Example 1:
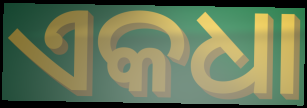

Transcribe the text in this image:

ଏକଧା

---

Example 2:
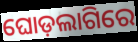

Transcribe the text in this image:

ଘୋଡ଼ଲାଗିରେ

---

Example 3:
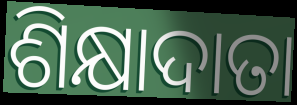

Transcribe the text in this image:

ଶିକ୍ଷାଦାତା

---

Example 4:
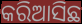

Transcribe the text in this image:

କରିଆସିଛ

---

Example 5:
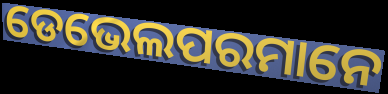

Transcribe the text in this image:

ଡେଭେଲପରମାନେ